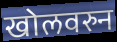
खोलवरुन